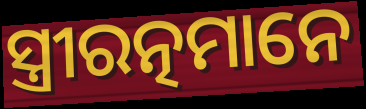
ସ୍ତ୍ରୀରତ୍ନମାନେ